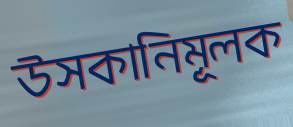
উসকানিমূলক